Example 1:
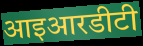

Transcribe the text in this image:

आइआरडीटी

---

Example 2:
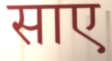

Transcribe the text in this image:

साए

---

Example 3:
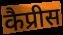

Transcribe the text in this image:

कैप्रीस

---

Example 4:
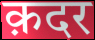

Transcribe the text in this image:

क़दर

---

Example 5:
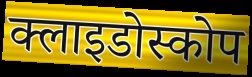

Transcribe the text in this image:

क्लाइडोस्कोप